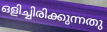
ഒളിച്ചിരിക്കുന്നതു